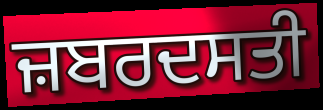
ਜ਼ਬਰਦਸਤੀ